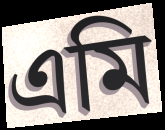
এমি